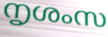
നൃശംസ